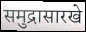
समुद्रासारखे